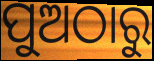
ପୁଅଠାରୁ